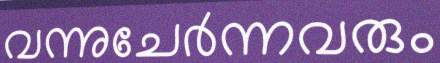
വന്നുചേർന്നവരും